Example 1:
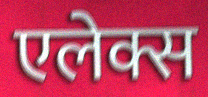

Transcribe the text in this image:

एलेक्स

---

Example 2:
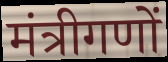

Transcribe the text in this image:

मंत्रीगणों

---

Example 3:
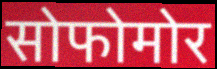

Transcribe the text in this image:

सोफोमोर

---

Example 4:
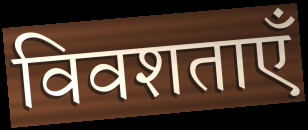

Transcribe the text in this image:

विवशताएँ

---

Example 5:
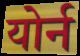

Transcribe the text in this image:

योर्न